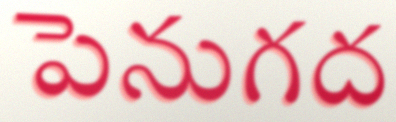
పెనుగద